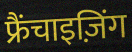
फ्रैंचाइज़िंग